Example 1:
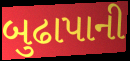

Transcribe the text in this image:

બુઢાપાની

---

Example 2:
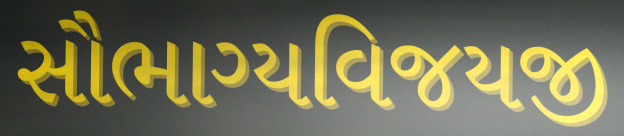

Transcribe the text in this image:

સૌભાગ્યવિજયજી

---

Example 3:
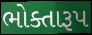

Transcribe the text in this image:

ભોક્તારૂપ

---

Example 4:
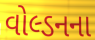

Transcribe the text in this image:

વોલ્ડનના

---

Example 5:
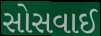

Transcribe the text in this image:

સોસવાઈ